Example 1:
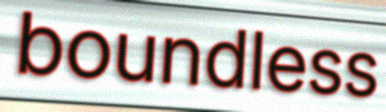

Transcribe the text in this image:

boundless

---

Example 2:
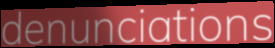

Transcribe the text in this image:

denunciations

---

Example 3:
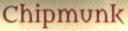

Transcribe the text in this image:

Chipmunk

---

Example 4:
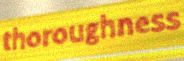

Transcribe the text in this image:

thoroughness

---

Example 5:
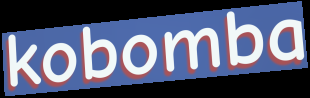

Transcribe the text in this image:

kobomba